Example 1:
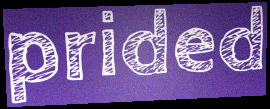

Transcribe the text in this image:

prided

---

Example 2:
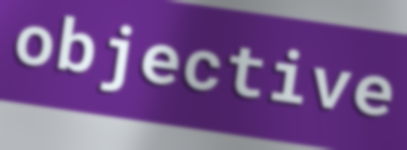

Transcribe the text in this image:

objective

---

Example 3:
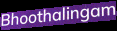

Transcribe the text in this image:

Bhoothalingam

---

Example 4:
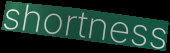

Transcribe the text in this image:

shortness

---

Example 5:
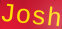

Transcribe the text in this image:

Josh